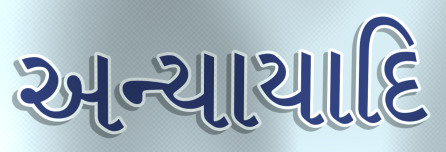
અન્યાયાદિ